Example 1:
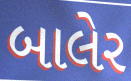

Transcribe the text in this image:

બાલેર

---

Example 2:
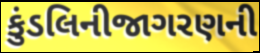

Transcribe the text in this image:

કુંડલિનીજાગરણની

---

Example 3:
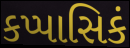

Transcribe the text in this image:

કપ્પાસિકં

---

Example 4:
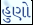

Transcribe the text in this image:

હુણો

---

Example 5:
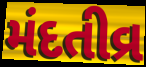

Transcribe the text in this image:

મંદતીવ્ર